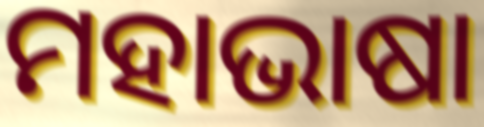
ମହାଭାଷା